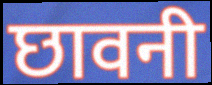
छावनी